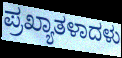
ಪ್ರಖ್ಯಾತಳಾದಳು